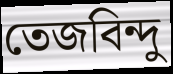
তেজবিন্দু